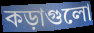
কড়াগুলো